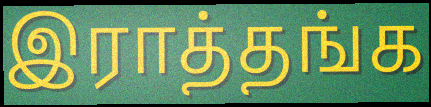
இராத்தங்க